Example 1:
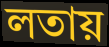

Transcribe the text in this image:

লতায়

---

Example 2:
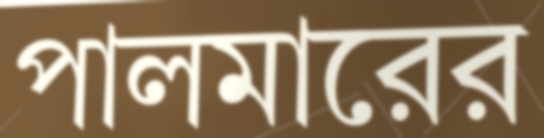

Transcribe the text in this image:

পালমারের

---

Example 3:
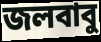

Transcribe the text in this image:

জলবাবু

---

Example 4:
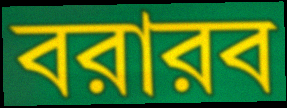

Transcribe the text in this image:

বরারব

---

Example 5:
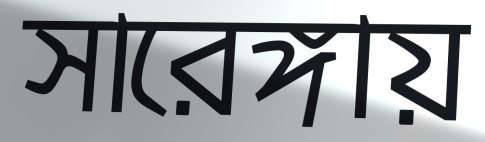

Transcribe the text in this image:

সারেঙ্গায়